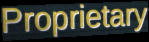
Proprietary